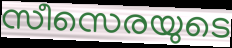
സീസെരയുടെ